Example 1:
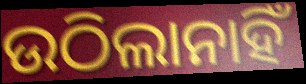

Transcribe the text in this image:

ଉଠିଲାନାହିଁ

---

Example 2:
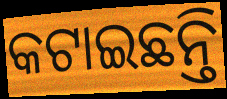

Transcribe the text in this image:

କଟାଇଛନ୍ତି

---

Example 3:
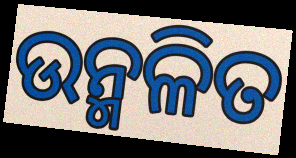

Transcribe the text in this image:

ଉନ୍ମଳିତ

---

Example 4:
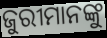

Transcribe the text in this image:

ଜୁରୀମାନଙ୍କୁ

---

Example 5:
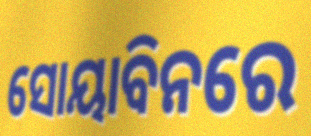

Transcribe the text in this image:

ସୋୟାବିନରେ